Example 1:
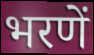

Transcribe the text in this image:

भरणें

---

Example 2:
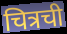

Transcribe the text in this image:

चित्रची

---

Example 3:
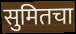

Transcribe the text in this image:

सुमितचा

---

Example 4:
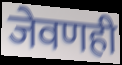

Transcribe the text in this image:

जेवणही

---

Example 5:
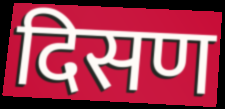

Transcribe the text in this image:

दिसण